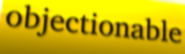
objectionable